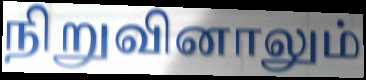
நிறுவினாலும்